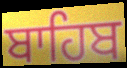
ਬਾਹਿਬ